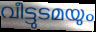
വീട്ടുടമയും